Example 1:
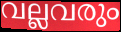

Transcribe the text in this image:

വല്ലവരും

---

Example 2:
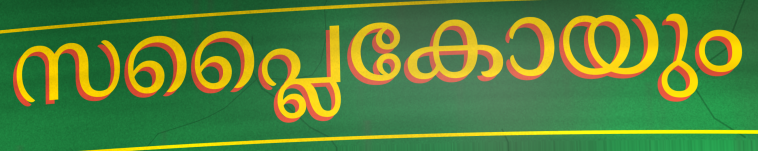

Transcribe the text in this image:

സപ്ലൈകോയും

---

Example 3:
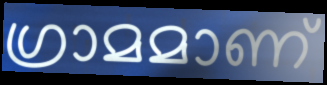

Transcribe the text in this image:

ഗ്രാമമാണ്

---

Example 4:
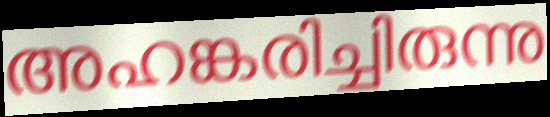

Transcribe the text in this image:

അഹങ്കരിച്ചിരുന്നു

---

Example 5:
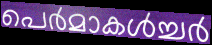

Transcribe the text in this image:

പെർമാകൾച്ചർ